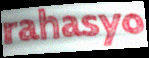
rahasyo